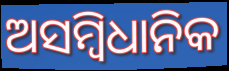
ଅସମ୍ବିଧାନିକ